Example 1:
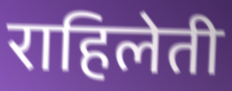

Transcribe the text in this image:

राहिलेती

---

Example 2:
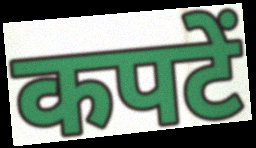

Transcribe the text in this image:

कपटें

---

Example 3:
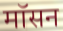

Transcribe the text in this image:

मॉसन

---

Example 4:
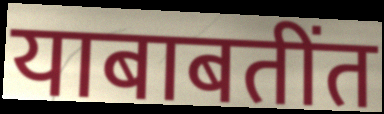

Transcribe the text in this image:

याबाबतींत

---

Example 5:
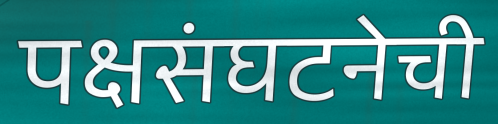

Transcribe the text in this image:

पक्षसंघटनेची